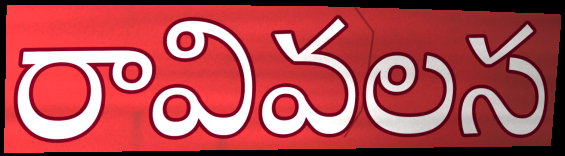
రావివలస